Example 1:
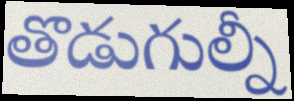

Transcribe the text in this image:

తొడుగుల్నీ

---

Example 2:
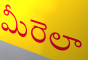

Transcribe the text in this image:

మీరెలా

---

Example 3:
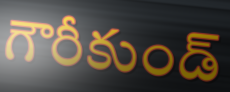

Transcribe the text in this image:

గౌరీకుండ్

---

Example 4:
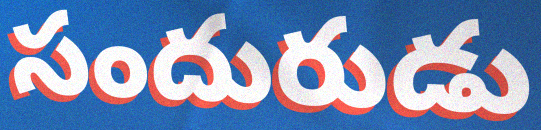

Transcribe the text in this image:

సందురుడు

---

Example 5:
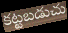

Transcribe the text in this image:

కట్టబడుచు